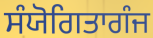
ਸੰਯੋਗਿਤਾਗੰਜ